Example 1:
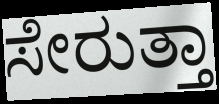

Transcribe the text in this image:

ಸೇರುತ್ತಾ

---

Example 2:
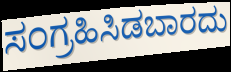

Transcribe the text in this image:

ಸಂಗ್ರಹಿಸಿಡಬಾರದು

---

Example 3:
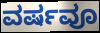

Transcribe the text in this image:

ವರ್ಷವೂ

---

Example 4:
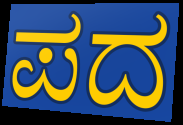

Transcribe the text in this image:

ಪದ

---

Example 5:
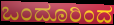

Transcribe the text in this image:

ಒಂದೂರಿಂದ